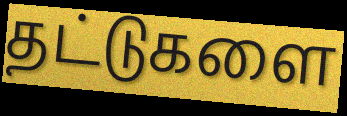
தட்டுகளை